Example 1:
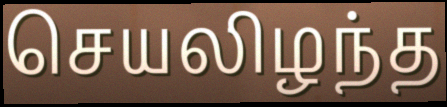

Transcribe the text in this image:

செயலிழந்த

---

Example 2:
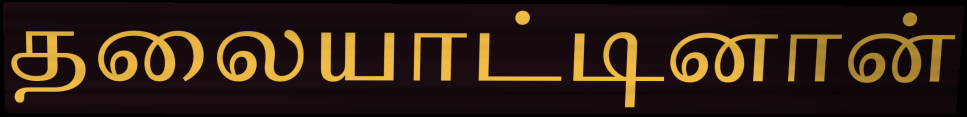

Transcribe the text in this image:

தலையாட்டினான்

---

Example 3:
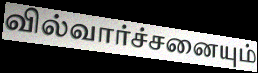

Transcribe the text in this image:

வில்வார்ச்சனையும்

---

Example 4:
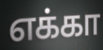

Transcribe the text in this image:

எக்கா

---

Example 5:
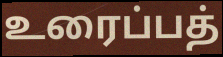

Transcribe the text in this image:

உரைப்பத்